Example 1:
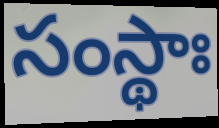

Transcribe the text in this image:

సంస్థాః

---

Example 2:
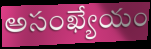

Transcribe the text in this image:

అసంఖ్యేయం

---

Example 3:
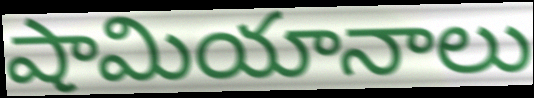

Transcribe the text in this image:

షామియానాలు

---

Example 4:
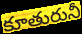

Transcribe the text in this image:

కూతురునీ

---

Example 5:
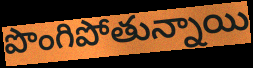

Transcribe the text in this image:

పొంగిపోతున్నాయి